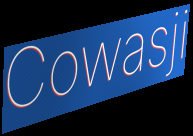
Cowasji